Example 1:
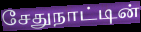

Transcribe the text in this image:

சேதுநாட்டின்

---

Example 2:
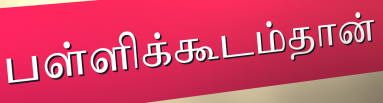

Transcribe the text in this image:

பள்ளிக்கூடம்தான்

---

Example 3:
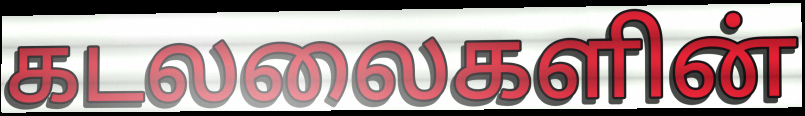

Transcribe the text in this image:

கடலலைகளின்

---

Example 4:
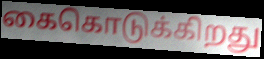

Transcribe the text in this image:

கைகொடுக்கிறது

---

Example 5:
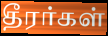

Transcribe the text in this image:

தீரர்கள்